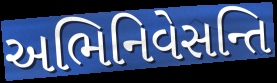
અભિનિવેસન્તિ